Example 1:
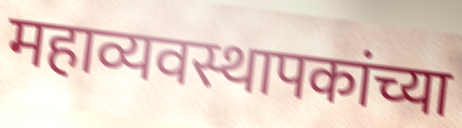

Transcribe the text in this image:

महाव्यवस्थापकांच्या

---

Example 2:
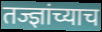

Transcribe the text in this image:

तज्ज्ञांच्याच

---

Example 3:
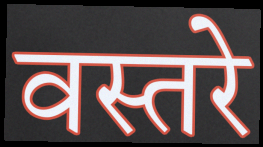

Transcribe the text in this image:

वस्तरे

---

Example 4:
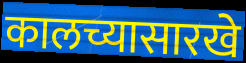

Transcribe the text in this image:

कालच्यासारखे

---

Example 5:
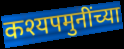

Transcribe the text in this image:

कश्यपमुनींच्या